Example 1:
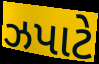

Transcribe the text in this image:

ઝપાટે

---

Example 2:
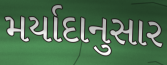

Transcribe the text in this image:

મર્યાદાનુસાર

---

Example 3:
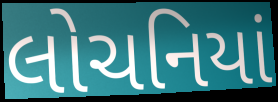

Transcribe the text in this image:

લોચનિયાં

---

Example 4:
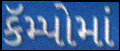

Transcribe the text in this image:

કૅમ્પોમાં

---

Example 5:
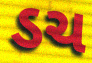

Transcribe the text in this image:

ડચ